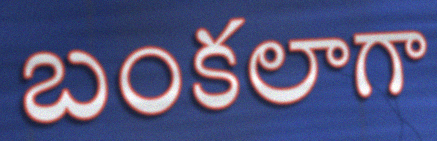
బంకలాగా